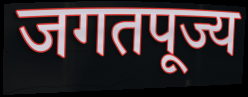
जगतपूज्य